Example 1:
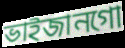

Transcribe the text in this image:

ভাইজানগো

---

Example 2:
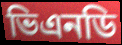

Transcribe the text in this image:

ভিএনডি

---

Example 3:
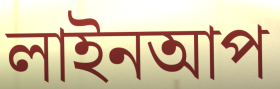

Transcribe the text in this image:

লাইনআপ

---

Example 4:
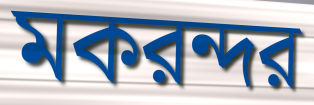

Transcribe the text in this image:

মকরন্দর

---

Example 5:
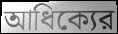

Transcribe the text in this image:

আধিক্যের